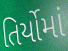
તિર્યોમાં